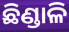
ଛିଣ୍ଡାଳି